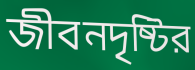
জীবনদৃষ্টির